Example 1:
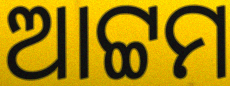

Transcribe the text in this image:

ଆଟ୍ଟମ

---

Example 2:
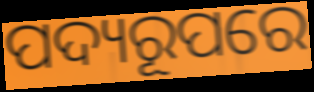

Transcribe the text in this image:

ପଦ୍ୟରୂପରେ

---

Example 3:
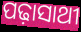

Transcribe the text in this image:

ପଢ଼ାସାଥୀ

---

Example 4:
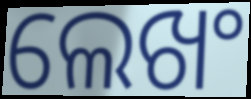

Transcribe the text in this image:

ଲେଖଂ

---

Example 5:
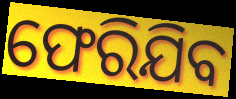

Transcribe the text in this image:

ଫେରିଯିବ